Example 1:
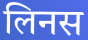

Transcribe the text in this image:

लिनस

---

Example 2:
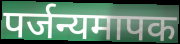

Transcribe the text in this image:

पर्जन्यमापक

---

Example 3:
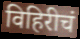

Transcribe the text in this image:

विहिरीचं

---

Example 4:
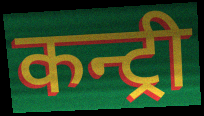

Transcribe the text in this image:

कन्ट्री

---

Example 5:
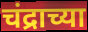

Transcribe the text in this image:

चंद्राच्या